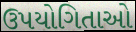
ઉપયોગિતાઓ